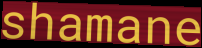
shamane